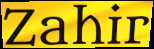
Zahir